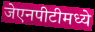
जेएनपीटीमध्ये